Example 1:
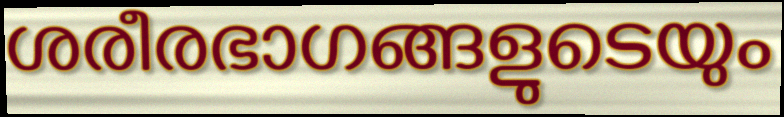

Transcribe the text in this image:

ശരീരഭാഗങ്ങളുടെയും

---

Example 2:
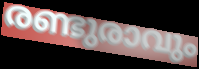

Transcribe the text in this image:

രണ്ടുരാവും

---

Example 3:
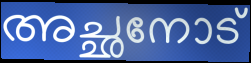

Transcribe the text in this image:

അച്ഛനോട്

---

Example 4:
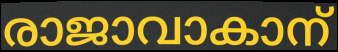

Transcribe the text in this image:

രാജാവാകാന്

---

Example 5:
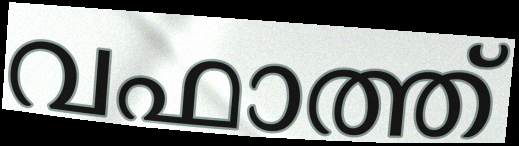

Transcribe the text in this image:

വഫാത്ത്